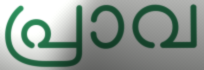
പ്രാവ